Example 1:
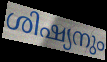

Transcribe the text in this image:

ശിഷ്യനും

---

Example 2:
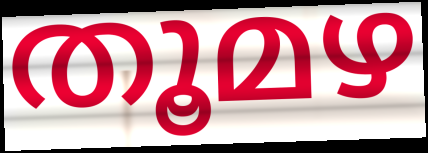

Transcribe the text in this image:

തൂമഴ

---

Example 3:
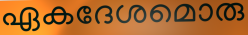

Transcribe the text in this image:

ഏകദേശമൊരു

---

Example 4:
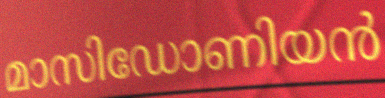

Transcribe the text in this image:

മാസിഡോണിയൻ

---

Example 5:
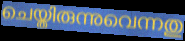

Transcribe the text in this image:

ചെയ്തിരുന്നുവെന്നതു